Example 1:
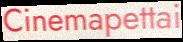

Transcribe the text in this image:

Cinemapettai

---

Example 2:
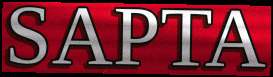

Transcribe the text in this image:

SAPTA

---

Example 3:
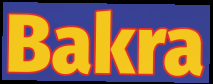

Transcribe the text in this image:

Bakra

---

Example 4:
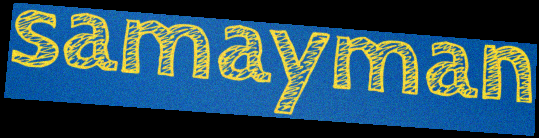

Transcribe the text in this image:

samayman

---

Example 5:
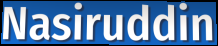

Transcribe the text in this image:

Nasiruddin